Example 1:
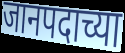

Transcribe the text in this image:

जानपदाच्या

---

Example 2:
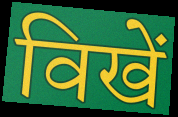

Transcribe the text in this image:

विखें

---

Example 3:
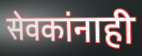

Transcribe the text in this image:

सेवकांनाही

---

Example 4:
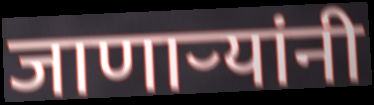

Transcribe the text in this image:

जाणाऱ्यांनी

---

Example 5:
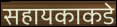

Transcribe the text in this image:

सहायकाकडे